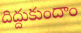
దిద్దుకుందాం